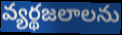
వ్యర్థజలాలను